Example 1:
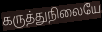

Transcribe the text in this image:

கருத்துநிலையே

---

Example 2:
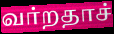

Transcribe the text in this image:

வர்றதாச்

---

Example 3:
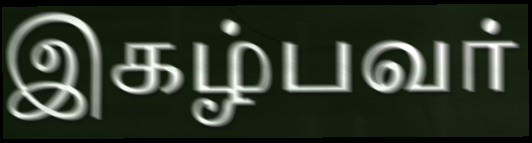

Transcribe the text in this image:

இகழ்பவர்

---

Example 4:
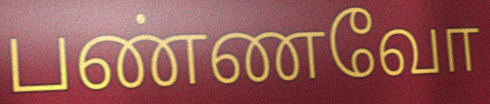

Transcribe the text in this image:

பண்ணவோ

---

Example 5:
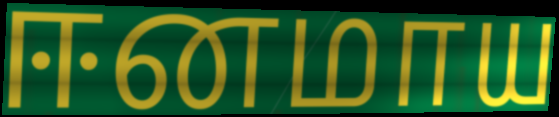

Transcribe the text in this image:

ஈனமாய